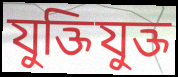
যুক্তিযুক্ত